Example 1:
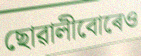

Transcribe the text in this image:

ছোৱালীবোৰেও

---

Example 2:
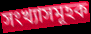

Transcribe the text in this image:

সংখ্যাসমূহক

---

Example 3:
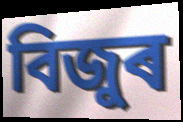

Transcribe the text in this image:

বিজুৰ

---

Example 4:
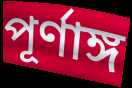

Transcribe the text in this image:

পূৰ্ণাঙ্গ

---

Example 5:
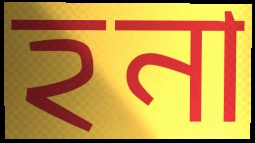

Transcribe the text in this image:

হনা